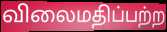
விலைமதிப்பற்ற